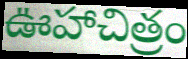
ఊహాచిత్రం